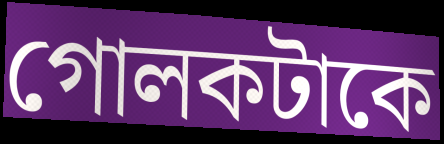
গোলকটাকে